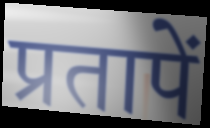
प्रतापें